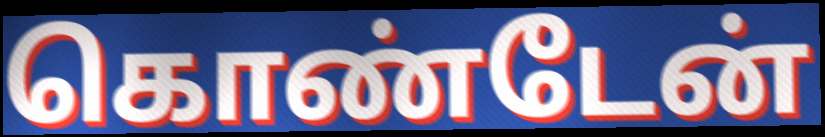
கொண்டேன்